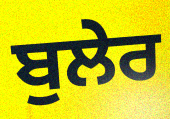
ਬੁਲੇਰ